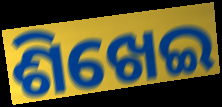
ଶିଖେଇ